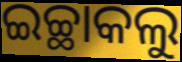
ଇଚ୍ଛାକଲୁ